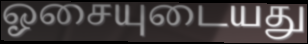
ஓசையுடையது